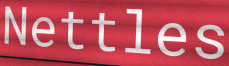
Nettles